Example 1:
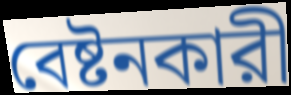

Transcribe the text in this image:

বেষ্টনকারী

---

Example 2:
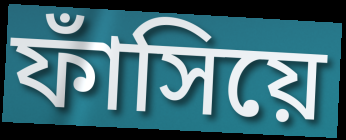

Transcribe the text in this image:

ফাঁসিয়ে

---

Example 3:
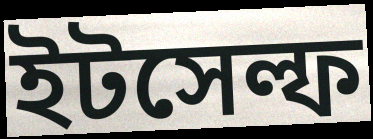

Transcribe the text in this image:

ইটসেল্ফ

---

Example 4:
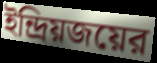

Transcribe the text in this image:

ইন্দ্রিয়জয়ের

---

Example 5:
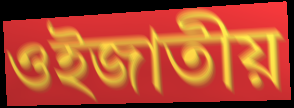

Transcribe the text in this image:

ওইজাতীয়